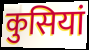
कुसियां